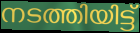
നടത്തിയിട്ട്